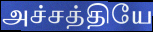
அச்சத்தியே